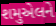
શમુએલને